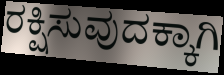
ರಕ್ಷಿಸುವುದಕ್ಕಾಗಿ